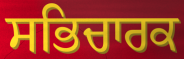
ਸਭਿਚਾਰਕ